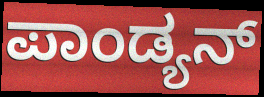
ಪಾಂಡ್ಯನ್